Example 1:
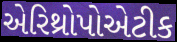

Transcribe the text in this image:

એરિથ્રોપોએટીક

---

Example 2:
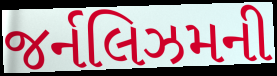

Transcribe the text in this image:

જર્નલિઝમની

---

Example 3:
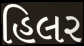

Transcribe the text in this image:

હિલર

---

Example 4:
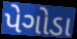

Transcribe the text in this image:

પેગોડા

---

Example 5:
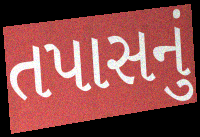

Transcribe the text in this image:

તપાસનું